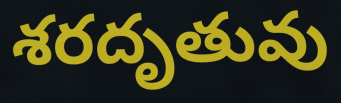
శరదృతువు